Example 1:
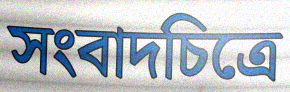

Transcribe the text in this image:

সংবাদচিত্রে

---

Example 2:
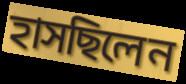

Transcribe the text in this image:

হাসছিলেন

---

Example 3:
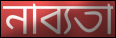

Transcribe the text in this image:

নাব্যতা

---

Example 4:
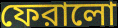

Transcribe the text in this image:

ফেরালো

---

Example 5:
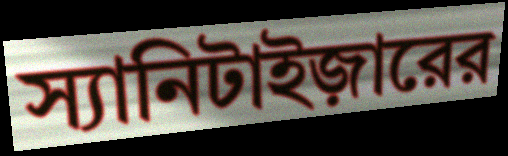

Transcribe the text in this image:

স্যানিটাইজ়ারের